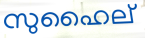
സുഹൈല്